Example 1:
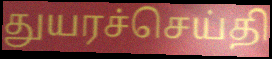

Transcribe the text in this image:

துயரச்செய்தி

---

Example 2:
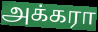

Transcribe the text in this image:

அக்கரா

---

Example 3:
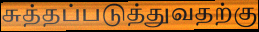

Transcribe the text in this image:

சுத்தப்படுத்துவதற்கு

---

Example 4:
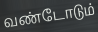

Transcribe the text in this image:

வண்டோடும்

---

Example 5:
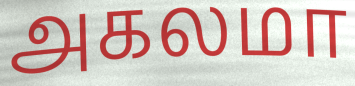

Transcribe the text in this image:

அகலமா